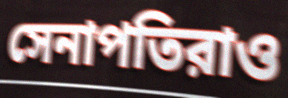
সেনাপতিরাও